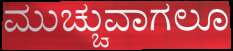
ಮುಚ್ಚುವಾಗಲೂ